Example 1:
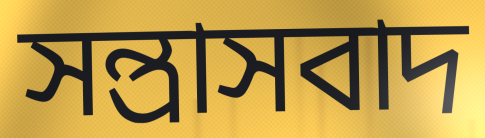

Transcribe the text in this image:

সন্ত্ৰাসবাদ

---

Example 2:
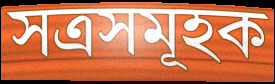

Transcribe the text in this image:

সত্ৰসমূহক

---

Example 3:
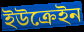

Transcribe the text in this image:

ইউক্ৰেইন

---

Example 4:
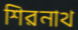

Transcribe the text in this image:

শিৱনাথ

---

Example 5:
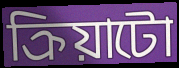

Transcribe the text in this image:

ক্ৰিয়াটো